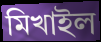
মিখাইল